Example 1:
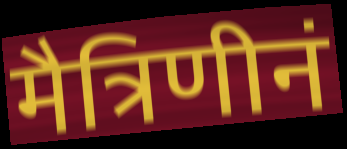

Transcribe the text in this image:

मैत्रिणीनं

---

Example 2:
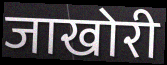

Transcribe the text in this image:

जाखोरी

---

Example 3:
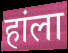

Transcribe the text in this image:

हांला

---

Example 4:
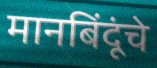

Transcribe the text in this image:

मानबिंदूंचे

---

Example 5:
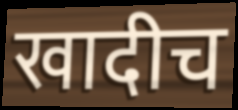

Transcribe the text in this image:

खादीच